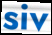
siv